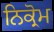
ਨਿਕ੍ਰੋਮ